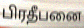
பிரதீபனை